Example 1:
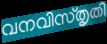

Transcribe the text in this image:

വനവിസ്തൃതി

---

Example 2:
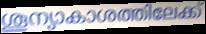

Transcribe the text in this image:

ശൂന്യാകാശത്തിലേക്ക്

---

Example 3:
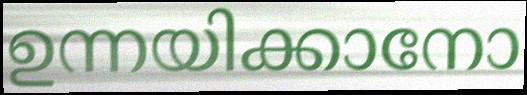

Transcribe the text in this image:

ഉന്നയിക്കാനോ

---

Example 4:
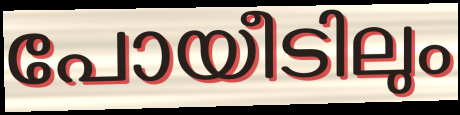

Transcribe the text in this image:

പോയീടിലും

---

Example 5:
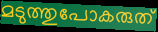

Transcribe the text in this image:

മടുത്തുപോകരുത്